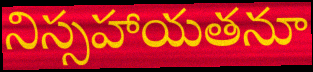
నిస్సహాయతనూ